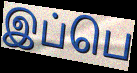
இப்பெ